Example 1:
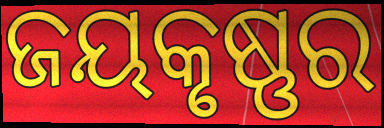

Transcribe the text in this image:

ଜୟକୃଷ୍ଣର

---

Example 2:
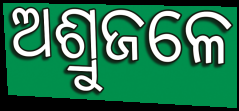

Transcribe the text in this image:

ଅଶ୍ରୁଜଳେ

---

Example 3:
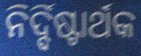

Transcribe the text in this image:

ନିର୍ଦ୍ଦିଷ୍ଟାର୍ଥକ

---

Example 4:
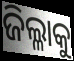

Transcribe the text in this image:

ଜିଲ୍ଳାକୁ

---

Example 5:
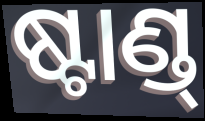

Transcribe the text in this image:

ଷ୍ଟାଣ୍ଡ୍